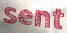
sent